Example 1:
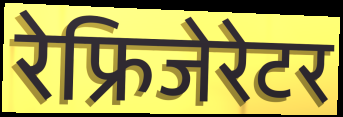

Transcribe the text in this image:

रेफ्रिजेरेटर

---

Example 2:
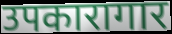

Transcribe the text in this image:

उपकारागार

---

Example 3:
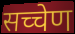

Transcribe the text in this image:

सच्चेण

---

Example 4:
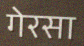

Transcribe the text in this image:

गेरसा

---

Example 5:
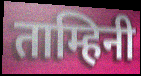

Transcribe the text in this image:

ताम्हिनी